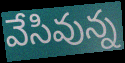
వేసివున్న